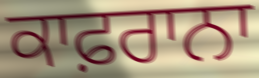
ਕਾਫ਼ਰਾਨਾ